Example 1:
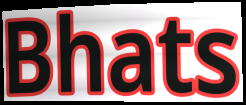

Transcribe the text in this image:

Bhats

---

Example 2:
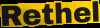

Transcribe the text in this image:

Rethel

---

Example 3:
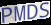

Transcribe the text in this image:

PMDS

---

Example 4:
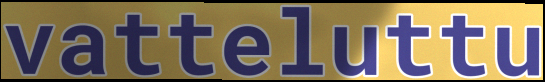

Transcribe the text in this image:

vatteluttu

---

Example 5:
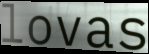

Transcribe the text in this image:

lovas